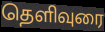
தெளிவுரை